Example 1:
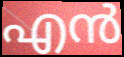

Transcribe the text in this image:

എൻ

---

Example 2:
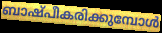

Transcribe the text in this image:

ബാഷ്പീകരിക്കുമ്പോൾ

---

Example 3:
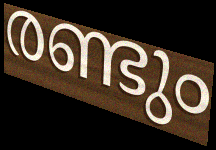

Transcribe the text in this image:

രണ്ടും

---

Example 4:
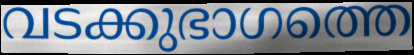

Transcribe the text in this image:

വടക്കുഭാഗത്തെ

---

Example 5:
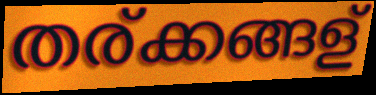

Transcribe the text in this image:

തര്ക്കങ്ങള്